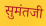
सुमंतजी